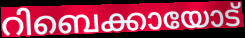
റിബെക്കായോട്